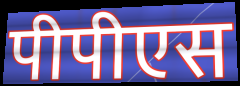
पीपीएस